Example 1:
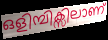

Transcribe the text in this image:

ഒളിമ്പിക്സിലാണ്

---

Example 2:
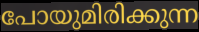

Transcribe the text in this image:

പോയുമിരിക്കുന്ന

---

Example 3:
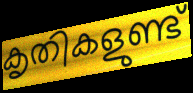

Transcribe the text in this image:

കൃതികളുണ്ട്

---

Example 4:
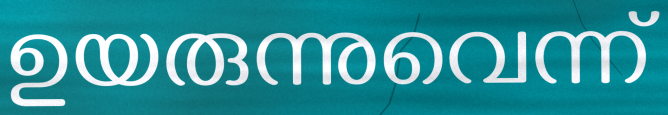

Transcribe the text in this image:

ഉയരുന്നുവെന്ന്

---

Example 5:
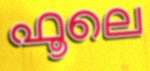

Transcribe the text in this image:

ഫൂലെ